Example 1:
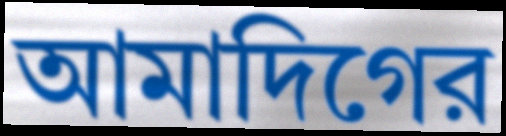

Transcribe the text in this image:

আমাদিগের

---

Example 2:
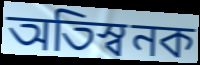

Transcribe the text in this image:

অতিস্বনক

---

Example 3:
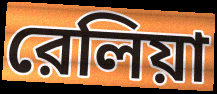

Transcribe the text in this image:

রেলিয়া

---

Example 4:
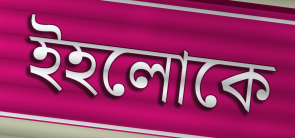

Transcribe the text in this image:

ইহলোকে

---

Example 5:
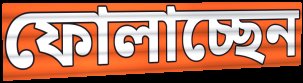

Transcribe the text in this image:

ফোলাচ্ছেন